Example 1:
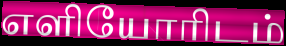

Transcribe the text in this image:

எளியோரிடம்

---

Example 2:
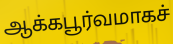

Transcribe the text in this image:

ஆக்கபூர்வமாகச்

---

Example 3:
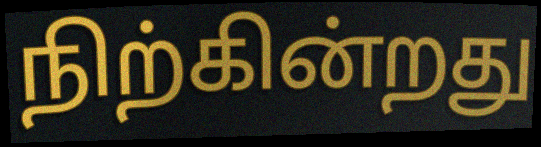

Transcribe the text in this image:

நிற்கின்றது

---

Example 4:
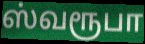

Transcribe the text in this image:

ஸ்வரூபா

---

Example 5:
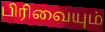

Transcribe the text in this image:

பிரிவையும்